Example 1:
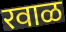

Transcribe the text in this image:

रवाळ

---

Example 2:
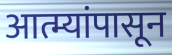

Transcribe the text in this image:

आत्म्यांपासून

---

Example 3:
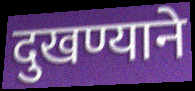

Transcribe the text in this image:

दुखण्याने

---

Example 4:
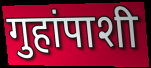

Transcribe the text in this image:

गुहांपाशी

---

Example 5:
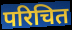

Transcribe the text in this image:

परिचित